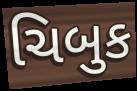
ચિબુક